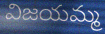
విజయమ్మ